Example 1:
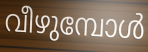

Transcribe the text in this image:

വീഴുമ്പോൾ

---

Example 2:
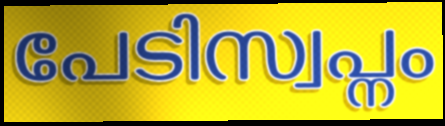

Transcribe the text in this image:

പേടിസ്വപ്നം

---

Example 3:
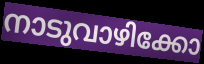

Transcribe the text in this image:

നാടുവാഴിക്കോ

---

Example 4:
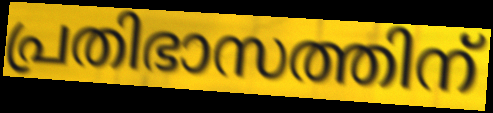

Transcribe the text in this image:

പ്രതിഭാസത്തിന്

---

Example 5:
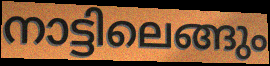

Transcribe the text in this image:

നാട്ടിലെങ്ങും